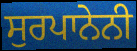
ਸੁਰਪਾਨੇਨੀ